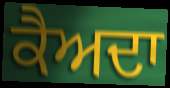
ਕੈਅਦਾ